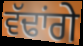
ਵੱਢਾਂਗੇ